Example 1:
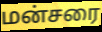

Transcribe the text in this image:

மன்சரை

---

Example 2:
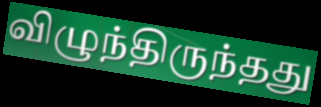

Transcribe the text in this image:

விழுந்திருந்தது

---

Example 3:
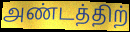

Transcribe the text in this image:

அண்டத்திற்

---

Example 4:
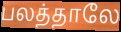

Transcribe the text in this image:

பலத்தாலே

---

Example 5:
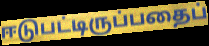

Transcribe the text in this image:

ஈடுபட்டிருப்பதைப்